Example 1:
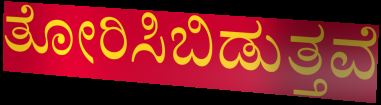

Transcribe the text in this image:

ತೋರಿಸಿಬಿಡುತ್ತವೆ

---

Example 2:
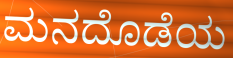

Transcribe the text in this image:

ಮನದೊಡೆಯ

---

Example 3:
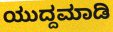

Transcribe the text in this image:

ಯುದ್ದಮಾಡಿ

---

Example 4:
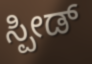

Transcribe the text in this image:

ಸ್ಪೀಡ್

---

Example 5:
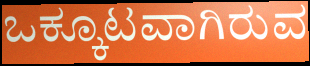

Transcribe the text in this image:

ಒಕ್ಕೂಟವಾಗಿರುವ